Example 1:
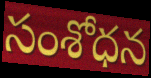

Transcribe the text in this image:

సంశోధన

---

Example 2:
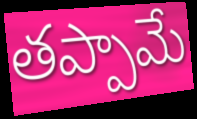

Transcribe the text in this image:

తప్పామే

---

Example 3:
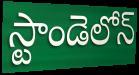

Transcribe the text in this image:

స్టాండెలోన్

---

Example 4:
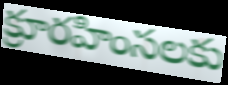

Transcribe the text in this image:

క్రూరహింసలకు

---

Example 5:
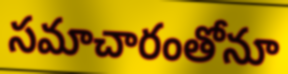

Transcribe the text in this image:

సమాచారంతోనూ